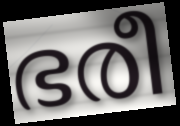
ഭരീ